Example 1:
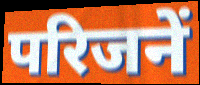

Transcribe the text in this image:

परिजनें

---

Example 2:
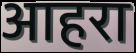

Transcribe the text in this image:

आहरा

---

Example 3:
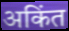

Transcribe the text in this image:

अकिंत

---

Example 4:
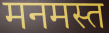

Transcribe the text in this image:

मनमस्त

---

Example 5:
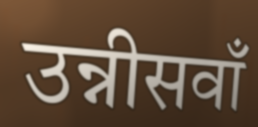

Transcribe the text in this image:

उन्नीसवाँ